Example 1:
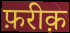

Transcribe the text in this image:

फ़रीक़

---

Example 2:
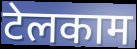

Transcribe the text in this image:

टेलकाम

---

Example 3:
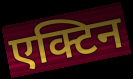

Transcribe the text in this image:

एक्टिन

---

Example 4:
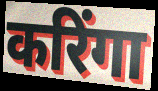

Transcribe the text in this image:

करिंगा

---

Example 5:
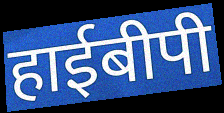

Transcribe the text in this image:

हाईबीपी